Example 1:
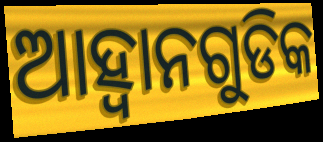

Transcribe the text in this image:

ଆହ୍ୱାନଗୁଡିକ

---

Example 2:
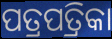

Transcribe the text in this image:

ପତ୍ରପତ୍ରିକା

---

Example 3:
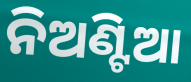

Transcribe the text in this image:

ନିଅଣ୍ଟିଆ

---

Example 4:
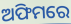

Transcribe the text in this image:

ଅଫିମରେ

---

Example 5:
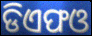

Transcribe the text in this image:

ଡିଏଫଓ